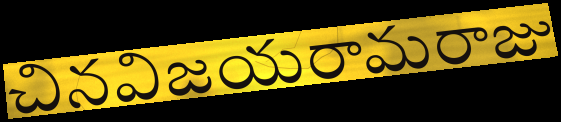
చినవిజయరామరాజు